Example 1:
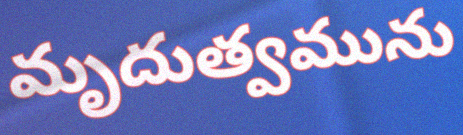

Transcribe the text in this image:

మృదుత్వమును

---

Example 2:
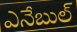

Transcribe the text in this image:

ఎనేబుల్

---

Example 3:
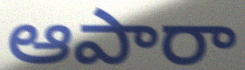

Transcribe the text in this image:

ఆపారా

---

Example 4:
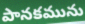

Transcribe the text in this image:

పానకమును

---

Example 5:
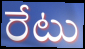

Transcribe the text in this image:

రేటు